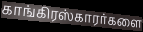
காங்கிரஸ்காரர்களை